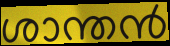
ശാന്തൻ